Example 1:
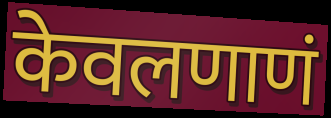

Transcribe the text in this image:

केवलणाणं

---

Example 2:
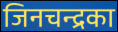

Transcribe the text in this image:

जिनचन्द्रका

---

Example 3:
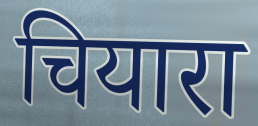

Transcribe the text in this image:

चियारा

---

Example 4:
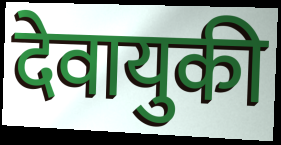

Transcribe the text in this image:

देवायुकी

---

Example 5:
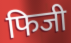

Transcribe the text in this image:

फिजी